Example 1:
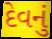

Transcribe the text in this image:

દેવનું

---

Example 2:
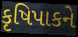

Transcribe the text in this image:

કૃષિપાકને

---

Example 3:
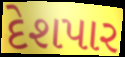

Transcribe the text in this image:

દેશપાર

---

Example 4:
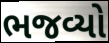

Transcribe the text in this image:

ભજવ્યો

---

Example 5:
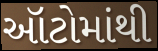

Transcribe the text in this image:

ઑટોમાંથી